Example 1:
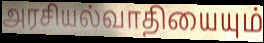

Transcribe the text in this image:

அரசியல்வாதியையும்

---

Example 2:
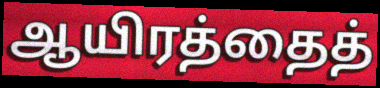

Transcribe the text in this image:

ஆயிரத்தைத்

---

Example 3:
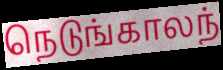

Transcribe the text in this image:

நெடுங்காலந்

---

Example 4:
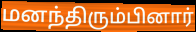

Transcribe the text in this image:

மனந்திரும்பினார்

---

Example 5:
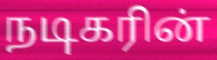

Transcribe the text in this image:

நடிகரின்